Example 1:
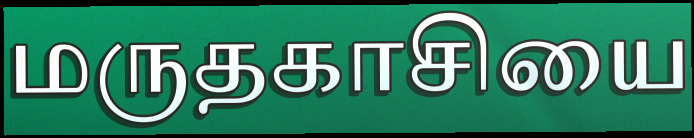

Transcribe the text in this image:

மருதகாசியை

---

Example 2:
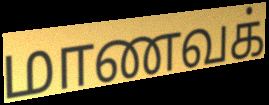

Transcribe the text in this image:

மாணவக்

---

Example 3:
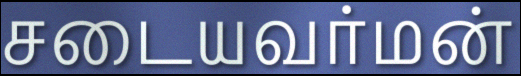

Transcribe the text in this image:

சடையவர்மன்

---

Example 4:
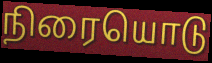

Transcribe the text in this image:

நிரையொடு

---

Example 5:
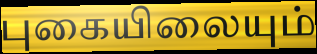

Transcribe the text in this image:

புகையிலையும்